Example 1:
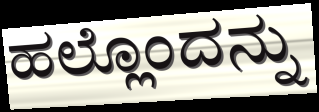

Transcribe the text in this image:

ಹಲ್ಲೊಂದನ್ನು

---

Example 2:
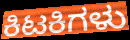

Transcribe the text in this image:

ಕಿಟಕಿಗಳು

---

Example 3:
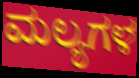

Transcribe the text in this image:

ಮಲ್ಯಗಳ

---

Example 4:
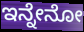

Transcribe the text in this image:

ಇನ್ನೇನೋ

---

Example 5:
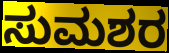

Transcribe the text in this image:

ಸುಮಶರ